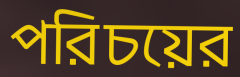
পরিচয়ের